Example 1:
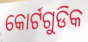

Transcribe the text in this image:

କୋର୍ଟଗୁଡିକ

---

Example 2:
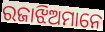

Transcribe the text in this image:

ରଜାଝିଅମାନେ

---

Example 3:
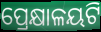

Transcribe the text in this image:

ପ୍ରେକ୍ଷାଳୟଟି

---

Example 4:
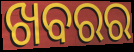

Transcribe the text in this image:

ଖବରର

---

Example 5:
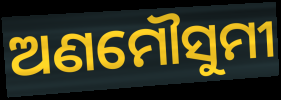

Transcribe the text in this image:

ଅଣମୌସୁମୀ